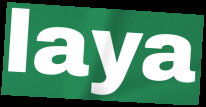
laya